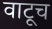
वाटूच